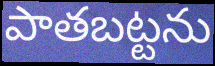
పాతబట్టను